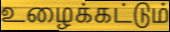
உழைக்கட்டும்